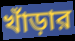
খাঁড়ার